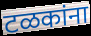
टळकांना